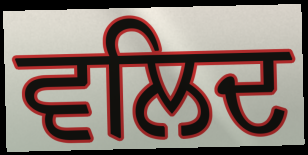
ਵਲਿਦ